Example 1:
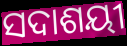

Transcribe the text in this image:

ସଦାଶୟୀ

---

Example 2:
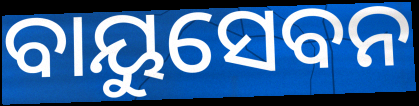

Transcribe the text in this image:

ବାୟୁସେବନ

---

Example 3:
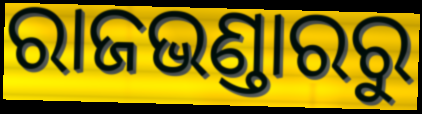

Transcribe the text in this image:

ରାଜଭଣ୍ଡାରରୁ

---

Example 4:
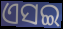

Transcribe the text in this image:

ଏସଇ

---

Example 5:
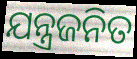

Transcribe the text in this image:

ଯନ୍ତ୍ରଜନିତ